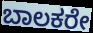
ಬಾಲಕರೇ